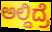
ಅಲ್ದಿದ್ರೆ